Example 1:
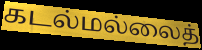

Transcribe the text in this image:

கடல்மல்லைத்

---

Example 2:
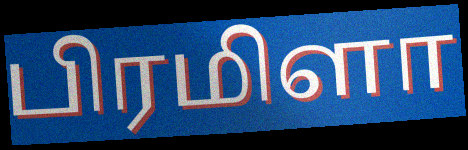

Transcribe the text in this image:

பிரமிளா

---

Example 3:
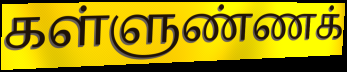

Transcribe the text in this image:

கள்ளுண்ணக்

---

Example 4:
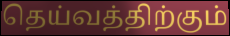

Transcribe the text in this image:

தெய்வத்திற்கும்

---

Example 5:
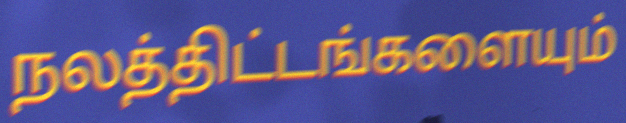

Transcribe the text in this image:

நலத்திட்டங்களையும்